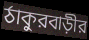
ঠাকুরবাড়ীর